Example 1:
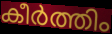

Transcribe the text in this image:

കീർത്തിം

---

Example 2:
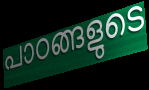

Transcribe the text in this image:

പാഠങ്ങളുടെ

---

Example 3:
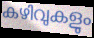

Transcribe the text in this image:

കഴിവുകളും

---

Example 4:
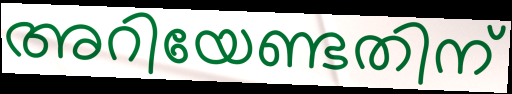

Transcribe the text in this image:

അറിയേണ്ടതിന്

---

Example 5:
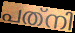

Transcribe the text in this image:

പത്‌നി